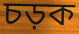
চড়ক